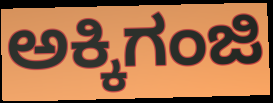
ಅಕ್ಕಿಗಂಜಿ